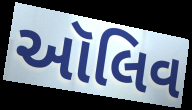
ઑલિવ